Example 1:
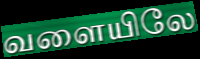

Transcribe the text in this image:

வளையிலே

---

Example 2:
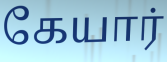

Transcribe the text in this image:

கேயார்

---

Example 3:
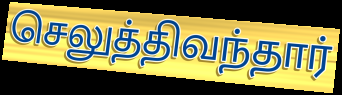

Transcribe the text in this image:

செலுத்திவந்தார்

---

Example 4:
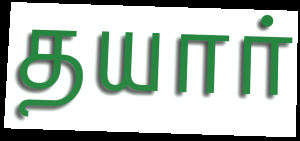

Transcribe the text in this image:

தயார்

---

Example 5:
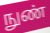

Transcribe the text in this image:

நுண்